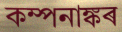
কম্পনাঙ্কৰ